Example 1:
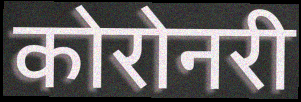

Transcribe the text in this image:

कोरोनरी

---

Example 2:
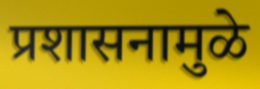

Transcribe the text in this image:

प्रशासनामुळे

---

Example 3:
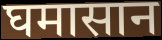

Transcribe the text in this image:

घमासान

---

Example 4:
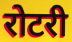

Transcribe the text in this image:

रोटरी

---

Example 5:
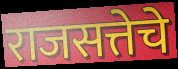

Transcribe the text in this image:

राजसत्तेचे